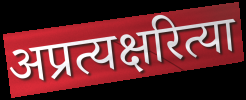
अप्रत्यक्षरित्या